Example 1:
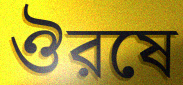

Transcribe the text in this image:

ঔরষে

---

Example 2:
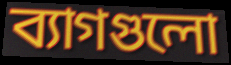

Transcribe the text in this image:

ব্যাগগুলো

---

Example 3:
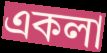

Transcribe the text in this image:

একলা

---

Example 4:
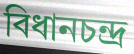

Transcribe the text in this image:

বিধানচন্দ্র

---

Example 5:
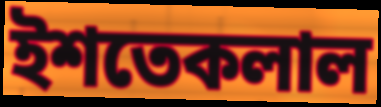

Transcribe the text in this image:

ইশতেকলাল